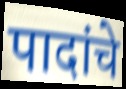
पादांचे